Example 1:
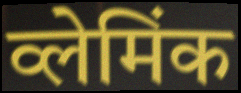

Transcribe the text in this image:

व्लेमिंक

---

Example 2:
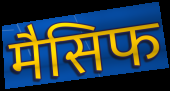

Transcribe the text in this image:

मैसिफ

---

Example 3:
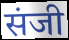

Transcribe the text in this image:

संजी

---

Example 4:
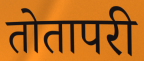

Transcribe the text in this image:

तोतापरी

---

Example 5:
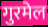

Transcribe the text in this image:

गुरमेल